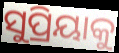
ସୁପ୍ରିୟାକୁ